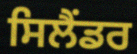
ਸਿਲੈਂਡਰ